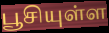
பூசியுள்ள